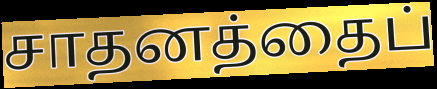
சாதனத்தைப்